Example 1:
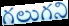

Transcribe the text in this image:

గలుగని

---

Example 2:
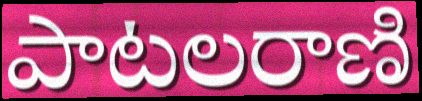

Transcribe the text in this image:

పాటలరాణి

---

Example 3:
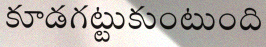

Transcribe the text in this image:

కూడగట్టుకుంటుంది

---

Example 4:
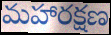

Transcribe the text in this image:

మహారక్షణ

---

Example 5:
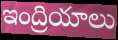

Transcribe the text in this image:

ఇంద్రియాలు